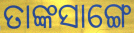
ତାଙ୍କସାଙ୍ଗେ